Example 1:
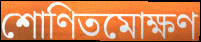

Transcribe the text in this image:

শোণিতমোক্ষণ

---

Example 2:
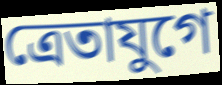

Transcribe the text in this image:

ত্রেতাযুগে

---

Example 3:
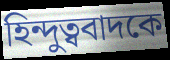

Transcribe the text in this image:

হিন্দুত্ববাদকে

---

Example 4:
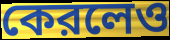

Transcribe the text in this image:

কেরলেও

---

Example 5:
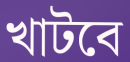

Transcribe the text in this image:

খাটবে